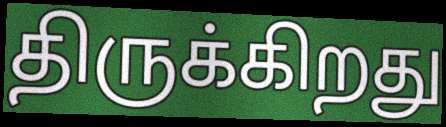
திருக்கிறது